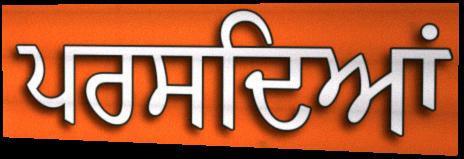
ਪਰਸਦਿਆਂ